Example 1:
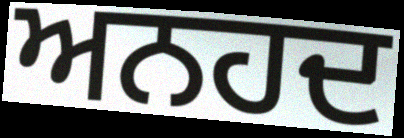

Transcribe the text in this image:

ਅਨਹਦ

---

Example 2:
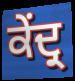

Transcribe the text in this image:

ਕੇਂਦ੍ਰ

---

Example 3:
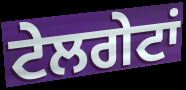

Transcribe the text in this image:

ਟੇਲਗੇਟਾਂ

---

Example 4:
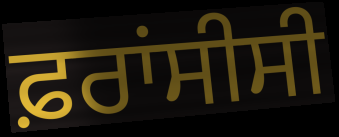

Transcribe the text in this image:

ਫ਼ਰਾਂਸੀਸੀ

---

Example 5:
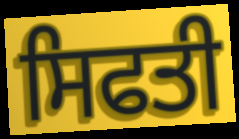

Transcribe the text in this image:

ਸਿਫਤੀ